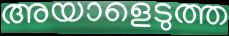
അയാളെടുത്ത